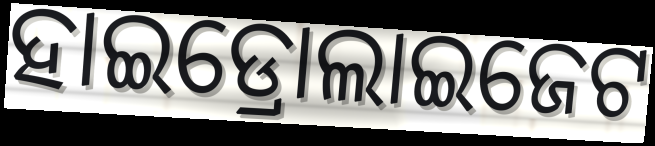
ହାଇଡ୍ରୋଲାଇଜେଟ